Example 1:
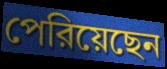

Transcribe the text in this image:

পেরিয়েছেন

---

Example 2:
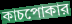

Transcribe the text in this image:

কাচপোকার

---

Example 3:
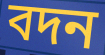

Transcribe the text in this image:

বদন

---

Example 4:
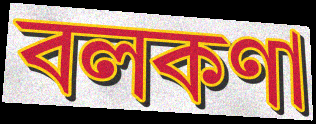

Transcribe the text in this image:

বলকণা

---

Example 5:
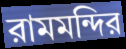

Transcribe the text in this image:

রামমন্দির